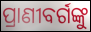
ପ୍ରାଣୀବର୍ଗଙ୍କୁ